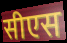
सीएस